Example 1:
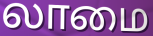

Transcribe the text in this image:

லாமை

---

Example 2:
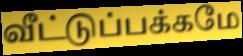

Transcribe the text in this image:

வீட்டுப்பக்கமே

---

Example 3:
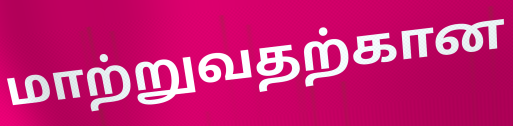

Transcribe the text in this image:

மாற்றுவதற்கான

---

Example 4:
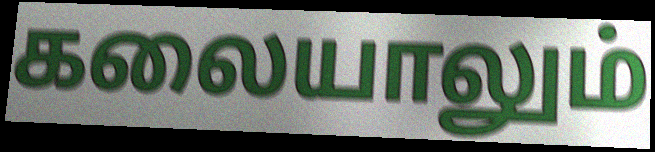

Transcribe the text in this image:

கலையாலும்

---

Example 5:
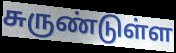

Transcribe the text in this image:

சுருண்டுள்ள